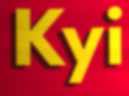
Kyi